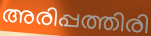
അരിപ്പത്തിരി